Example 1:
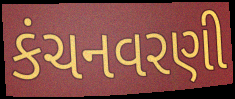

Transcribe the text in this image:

કંચનવરણી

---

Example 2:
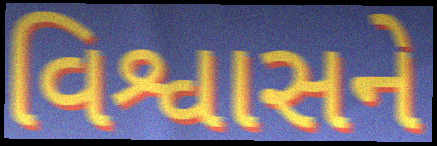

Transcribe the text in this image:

વિશ્વાસને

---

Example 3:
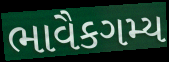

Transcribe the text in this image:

ભાવૈકગમ્ય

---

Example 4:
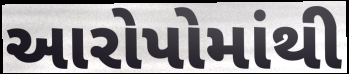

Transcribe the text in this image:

આરોપોમાંથી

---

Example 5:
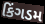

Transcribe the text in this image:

કિંગડમ